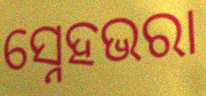
ସ୍ନେହଭରା